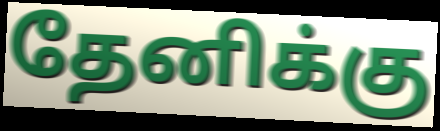
தேனிக்கு